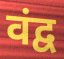
वंद्व